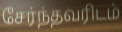
சேர்ந்தவரிடம்